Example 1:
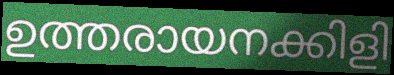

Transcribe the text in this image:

ഉത്തരായനക്കിളി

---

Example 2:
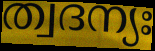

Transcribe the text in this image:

ത്വദന്യഃ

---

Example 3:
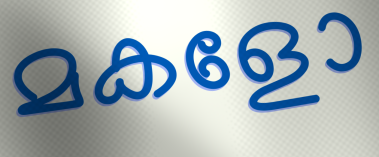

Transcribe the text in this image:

മകളോ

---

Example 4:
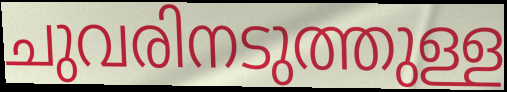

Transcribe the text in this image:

ചുവരിനടുത്തുള്ള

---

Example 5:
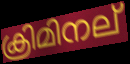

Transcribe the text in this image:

ക്രിമിനല്